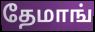
தேமாங்